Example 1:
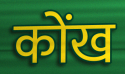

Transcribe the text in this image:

कोंख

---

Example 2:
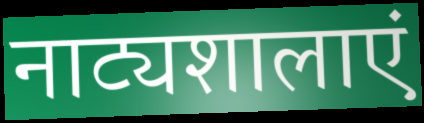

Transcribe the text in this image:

नाट्यशालाएं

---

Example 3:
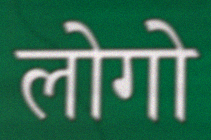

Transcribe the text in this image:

लोगो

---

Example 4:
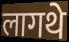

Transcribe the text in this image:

लागथे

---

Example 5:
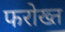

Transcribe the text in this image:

फरोख्त